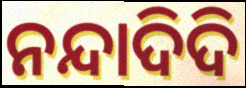
ନନ୍ଦାଦିଦି